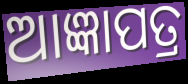
ଆଜ୍ଞାପତ୍ର